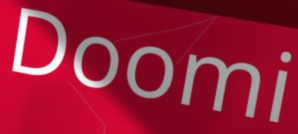
Doomi